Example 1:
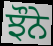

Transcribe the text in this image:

ਝੌਨੇ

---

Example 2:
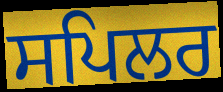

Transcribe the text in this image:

ਸਪਿਲਰ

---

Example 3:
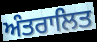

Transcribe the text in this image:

ਅੰਤਰਾਲਿਤ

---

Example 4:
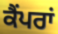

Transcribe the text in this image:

ਕੈਂਪਰਾਂ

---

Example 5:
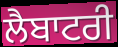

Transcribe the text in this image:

ਲੈਬਾਟਰੀ